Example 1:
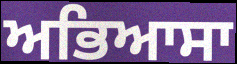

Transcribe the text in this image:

ਅਭਿਆਸਾ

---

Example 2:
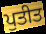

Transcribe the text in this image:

ਪੁਤੀਤ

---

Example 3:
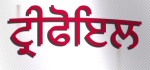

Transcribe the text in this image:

ਟ੍ਰੀਫੋਇਲ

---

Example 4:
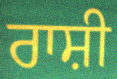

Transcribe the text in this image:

ਰਾਸ਼ੀ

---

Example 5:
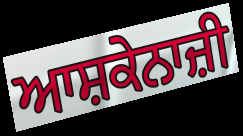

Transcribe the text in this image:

ਆਸ਼ਕੇਨਾਜ਼ੀ